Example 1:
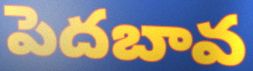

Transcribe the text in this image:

పెదబావ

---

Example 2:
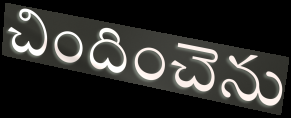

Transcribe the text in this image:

చిందించెను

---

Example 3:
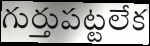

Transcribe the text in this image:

గుర్తుపట్టలేక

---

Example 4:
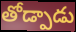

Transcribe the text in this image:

తోడ్పాడు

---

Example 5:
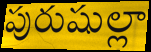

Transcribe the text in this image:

పురుషుల్లా